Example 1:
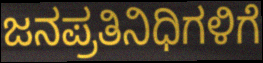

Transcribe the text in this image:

ಜನಪ್ರತಿನಿಧಿಗಳಿಗೆ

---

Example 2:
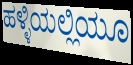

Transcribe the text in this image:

ಹಳ್ಳಿಯಲ್ಲಿಯೂ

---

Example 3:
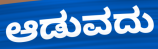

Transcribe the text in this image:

ಆಡುವದು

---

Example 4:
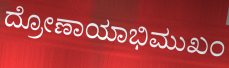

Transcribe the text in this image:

ದ್ರೋಣಾಯಾಭಿಮುಖಂ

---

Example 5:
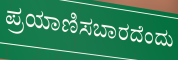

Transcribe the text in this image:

ಪ್ರಯಾಣಿಸಬಾರದೆಂದು